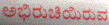
ಅಭಿರುಚಿಯಿರುವ